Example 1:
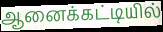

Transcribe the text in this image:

ஆனைக்கட்டியில்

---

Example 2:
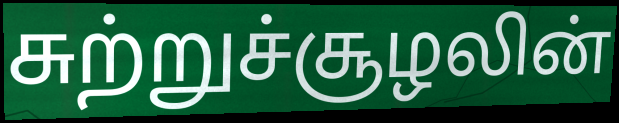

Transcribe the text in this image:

சுற்றுச்சூழலின்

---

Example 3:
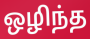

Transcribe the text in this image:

ஒழிந்த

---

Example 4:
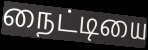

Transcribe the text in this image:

நைட்டியை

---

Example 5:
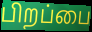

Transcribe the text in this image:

பிறப்பை